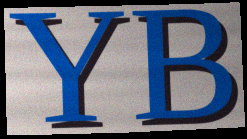
YB